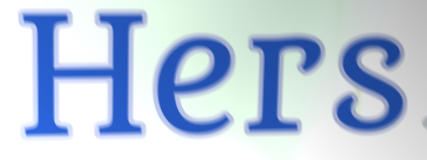
Hers